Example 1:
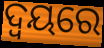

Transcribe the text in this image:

ଦ୍ୱୟରେ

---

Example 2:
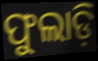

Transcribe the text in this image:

ଫୁଲାଡ଼ି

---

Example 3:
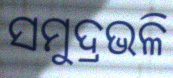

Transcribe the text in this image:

ସମୁଦ୍ରଭଳି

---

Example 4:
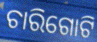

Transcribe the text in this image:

ଚାରିଗୋଟି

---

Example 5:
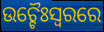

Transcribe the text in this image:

ଉଚ୍ଚୈଃସ୍ୱରରେ